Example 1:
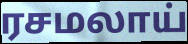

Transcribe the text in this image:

ரசமலாய்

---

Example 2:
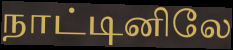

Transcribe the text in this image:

நாட்டினிலே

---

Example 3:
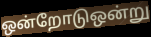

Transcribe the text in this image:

ஒன்றோடுஒன்று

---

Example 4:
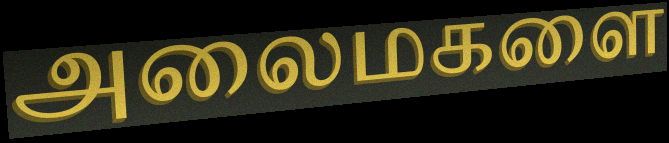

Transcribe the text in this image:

அலைமகளை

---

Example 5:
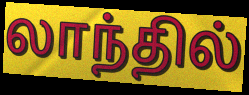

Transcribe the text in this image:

லாந்தில்